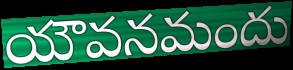
యౌవనమందు